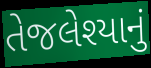
તેજલેશ્યાનું